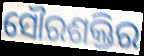
ସୌରଶକ୍ତିର